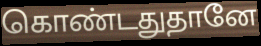
கொண்டதுதானே